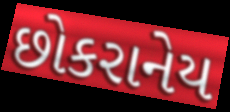
છોકરાનેય